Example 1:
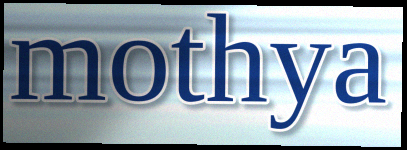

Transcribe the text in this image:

mothya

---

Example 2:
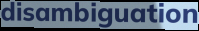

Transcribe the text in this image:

disambiguation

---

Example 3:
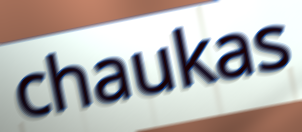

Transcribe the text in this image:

chaukas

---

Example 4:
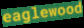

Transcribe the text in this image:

eaglewood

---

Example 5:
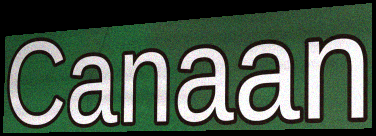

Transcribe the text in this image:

Canaan